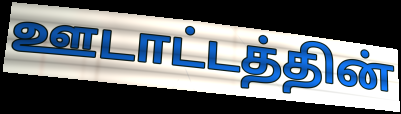
ஊடாட்டத்தின்